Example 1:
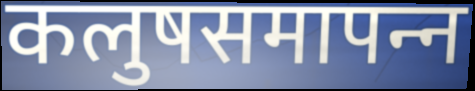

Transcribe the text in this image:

कलुषसमापन्न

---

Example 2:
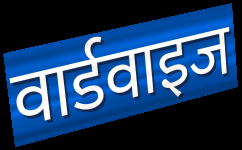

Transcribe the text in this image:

वार्डवाइज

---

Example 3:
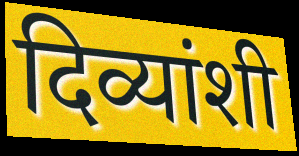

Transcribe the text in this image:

दिव्यांशी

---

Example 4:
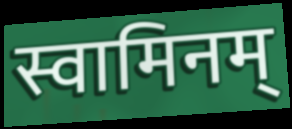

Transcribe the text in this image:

स्वामिनम्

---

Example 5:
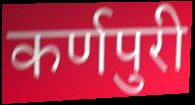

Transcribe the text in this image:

कर्णपुरी